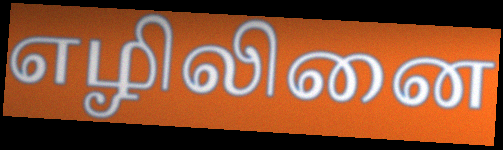
எழிலினை